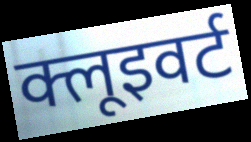
क्लूइवर्ट